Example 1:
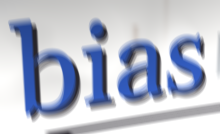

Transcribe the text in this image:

bias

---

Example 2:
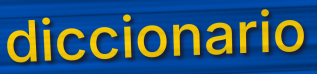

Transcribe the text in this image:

diccionario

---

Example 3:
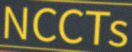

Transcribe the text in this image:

NCCTs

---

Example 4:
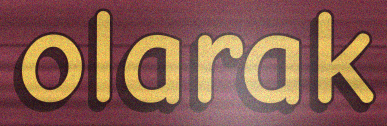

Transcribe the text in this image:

olarak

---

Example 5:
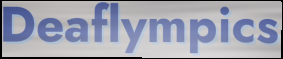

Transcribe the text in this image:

Deaflympics